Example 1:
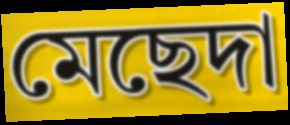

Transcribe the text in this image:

মেছেদা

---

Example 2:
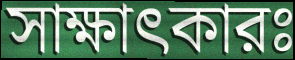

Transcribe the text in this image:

সাক্ষাৎকারঃ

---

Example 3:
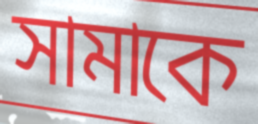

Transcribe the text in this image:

সামাকে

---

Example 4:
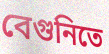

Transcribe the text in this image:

বেগুনিতে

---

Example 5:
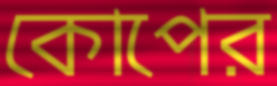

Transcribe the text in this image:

কোপের